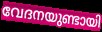
വേദനയുണ്ടായി